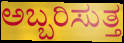
ಅಬ್ಬರಿಸುತ್ತ